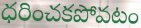
ధరించకపోవటం